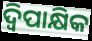
ଦ୍ବିପାକ୍ଷିକ